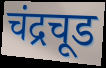
चंद्रचूड